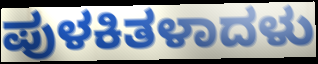
ಪುಳಕಿತಳಾದಳು